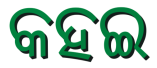
କହଇ